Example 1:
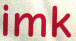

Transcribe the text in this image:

imk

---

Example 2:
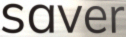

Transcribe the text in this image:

saver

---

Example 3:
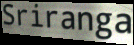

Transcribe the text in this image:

Sriranga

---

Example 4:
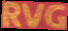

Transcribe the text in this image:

RVG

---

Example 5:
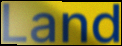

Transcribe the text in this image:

Land